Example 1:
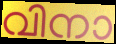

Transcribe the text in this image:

വിനാ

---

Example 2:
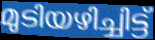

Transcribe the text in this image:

മുടിയഴിച്ചിട്ട്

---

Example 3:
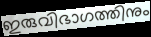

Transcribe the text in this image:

ഇരുവിഭാഗത്തിനും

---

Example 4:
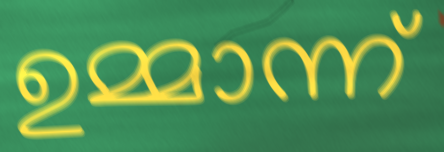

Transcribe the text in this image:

ഉമ്മാന്ന്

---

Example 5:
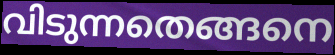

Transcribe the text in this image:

വിടുന്നതെങ്ങനെ